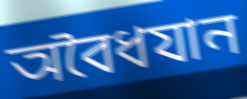
অবৈধযান